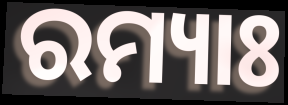
ରମ୍ୟାଃ